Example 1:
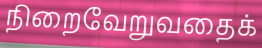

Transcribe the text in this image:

நிறைவேறுவதைக்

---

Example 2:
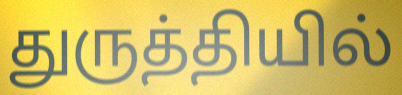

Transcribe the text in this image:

துருத்தியில்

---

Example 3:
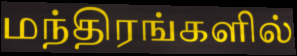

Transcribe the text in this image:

மந்திரங்களில்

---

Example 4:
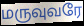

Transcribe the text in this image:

மருவுவரே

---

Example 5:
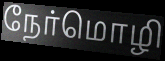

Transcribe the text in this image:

நேர்மொழி